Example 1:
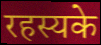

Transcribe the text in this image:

रहस्यके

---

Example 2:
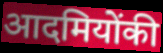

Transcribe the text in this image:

आदमियोंकी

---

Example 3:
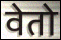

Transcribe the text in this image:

वेतो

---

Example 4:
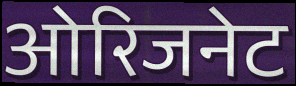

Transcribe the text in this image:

ओरिजनेट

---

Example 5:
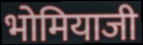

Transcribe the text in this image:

भोमियाजी